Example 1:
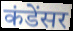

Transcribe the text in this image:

कंडेंसर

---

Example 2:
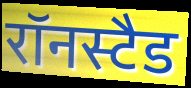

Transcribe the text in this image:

रॉनस्टैड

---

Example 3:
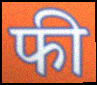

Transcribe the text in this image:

फी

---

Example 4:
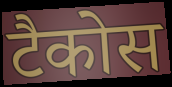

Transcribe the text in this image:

टैकोस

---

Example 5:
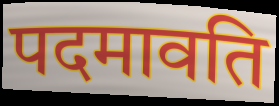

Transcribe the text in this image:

पदमावति